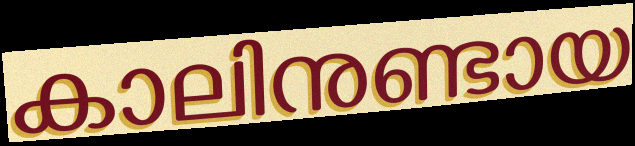
കാലിനുണ്ടായ